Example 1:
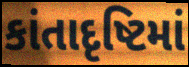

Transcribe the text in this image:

કાંતાદૃષ્ટિમાં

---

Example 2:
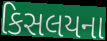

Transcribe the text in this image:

કિસલયના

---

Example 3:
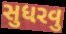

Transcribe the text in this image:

સુધરવુ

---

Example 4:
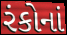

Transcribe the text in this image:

રંકોનાં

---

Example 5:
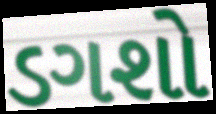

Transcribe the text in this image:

ડગશો